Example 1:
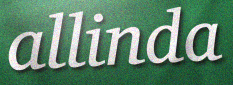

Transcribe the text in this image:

allinda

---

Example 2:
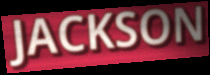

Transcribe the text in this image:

JACKSON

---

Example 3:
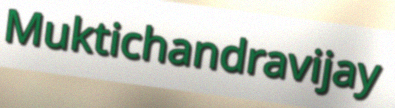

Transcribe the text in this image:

Muktichandravijay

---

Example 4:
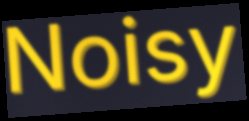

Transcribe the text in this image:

Noisy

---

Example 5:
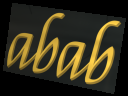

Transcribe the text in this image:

abab